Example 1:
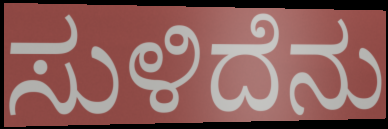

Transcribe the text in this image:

ಸುಳಿದೆನು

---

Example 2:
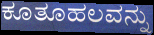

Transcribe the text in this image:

ಕೂತೂಹಲವನ್ನು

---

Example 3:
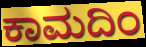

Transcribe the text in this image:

ಕಾಮದಿಂ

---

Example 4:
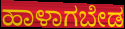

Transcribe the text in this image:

ಹಾಳಾಗಬೇಡ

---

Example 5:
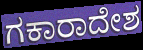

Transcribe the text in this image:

ಗಕಾರಾದೇಶ